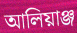
আলিয়াঞ্জ